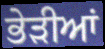
ਭੇੜੀਆਂ